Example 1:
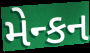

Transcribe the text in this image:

મેન્કન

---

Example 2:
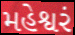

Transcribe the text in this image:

મહેશ્વરં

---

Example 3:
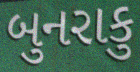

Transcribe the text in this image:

બુનરાકુ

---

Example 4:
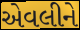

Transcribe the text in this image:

એવલીને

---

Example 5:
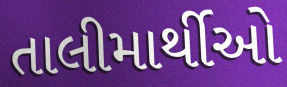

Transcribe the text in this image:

તાલીમાર્થીઓ